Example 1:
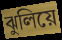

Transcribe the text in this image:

ঝুলিয়ে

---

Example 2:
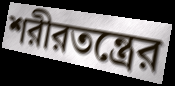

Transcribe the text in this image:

শরীরতন্ত্রের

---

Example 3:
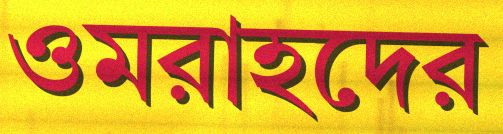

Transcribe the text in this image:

ওমরাহদের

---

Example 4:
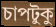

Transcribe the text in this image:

চাপটুকু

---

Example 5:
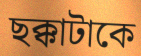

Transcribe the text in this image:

ছক্কাটাকে